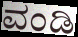
ವಂಡಿ